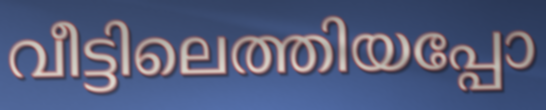
വീട്ടിലെത്തിയപ്പോ